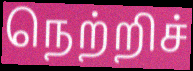
நெற்றிச்